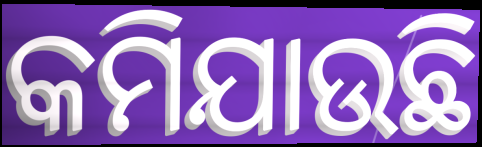
କମିଯାଉଛି